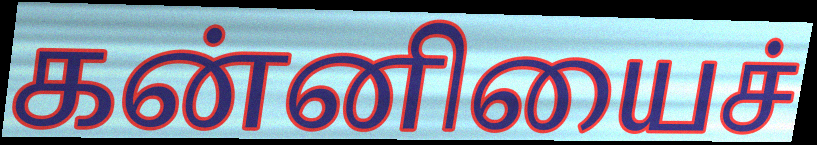
கன்னியைச்